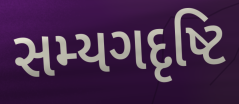
સમ્યગદૃષ્ટિ